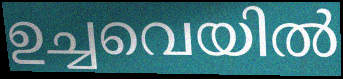
ഉച്ചവെയിൽ